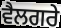
ਵੈਲਗਰੇ